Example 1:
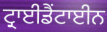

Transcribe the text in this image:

ਟ੍ਰਾਈਡੈਂਟਾਈਨ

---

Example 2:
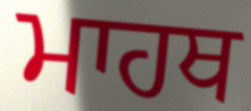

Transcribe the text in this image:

ਮਾਹਥ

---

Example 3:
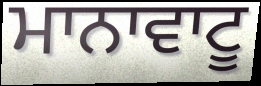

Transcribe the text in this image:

ਮਾਨਾਵਾਟੂ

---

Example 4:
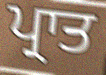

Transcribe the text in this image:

ਪ੍ਰਾਤ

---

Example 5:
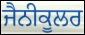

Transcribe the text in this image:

ਜੈਨੀਕੂਲਰ